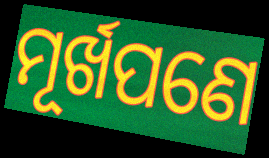
ମୂର୍ଖପଣେ